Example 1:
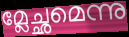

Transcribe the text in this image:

മ്ലേച്ഛമെന്നു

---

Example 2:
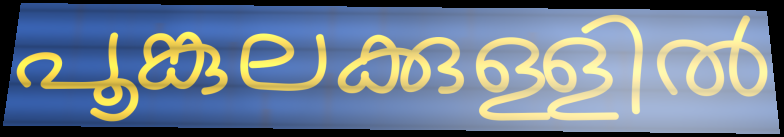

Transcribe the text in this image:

പൂങ്കുലക്കുള്ളിൽ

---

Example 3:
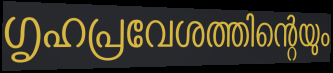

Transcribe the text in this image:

ഗൃഹപ്രവേശത്തിന്റെയും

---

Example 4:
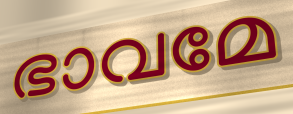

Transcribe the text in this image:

ഭാവമേ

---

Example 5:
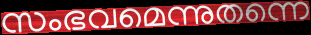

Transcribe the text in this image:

സംഭവമെന്നുതന്നെ